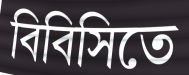
বিবিসিতে